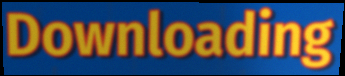
Downloading